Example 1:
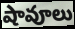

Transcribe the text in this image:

షావూలు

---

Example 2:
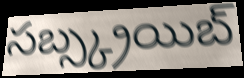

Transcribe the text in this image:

సబ్స్క్రయిబ్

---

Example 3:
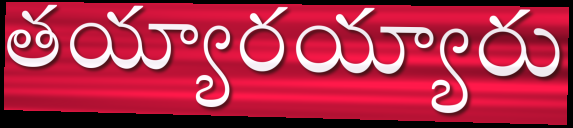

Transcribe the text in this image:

తయ్యారయ్యారు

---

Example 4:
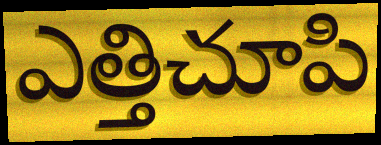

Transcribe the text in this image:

ఎత్తిచూపి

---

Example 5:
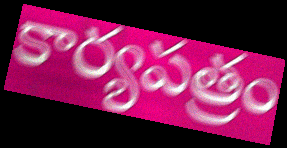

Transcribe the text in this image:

కార్యపత్రం